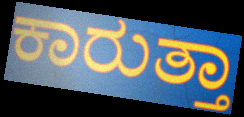
ಕಾರುತ್ತಾ